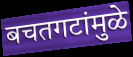
बचतगटांमुळे